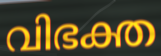
വിഭക്ത